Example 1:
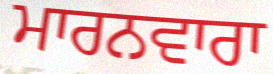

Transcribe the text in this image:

ਮਾਰਨਵਾਰਾ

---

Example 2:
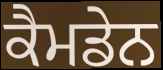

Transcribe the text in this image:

ਕੈਮਡੇਨ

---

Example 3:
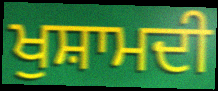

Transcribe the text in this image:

ਖੁਸ਼ਾਮਦੀ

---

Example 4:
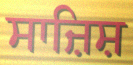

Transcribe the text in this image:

ਸਾਜ਼ਿਸ਼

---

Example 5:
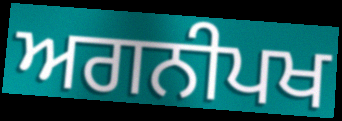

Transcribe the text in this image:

ਅਗਨੀਪਖ